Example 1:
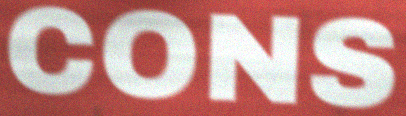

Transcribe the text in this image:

CONS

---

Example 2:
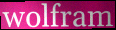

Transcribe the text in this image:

wolfram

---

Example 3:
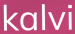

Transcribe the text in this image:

kalvi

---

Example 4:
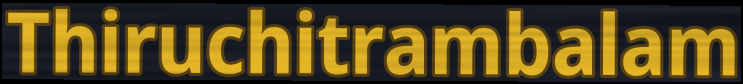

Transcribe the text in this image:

Thiruchitrambalam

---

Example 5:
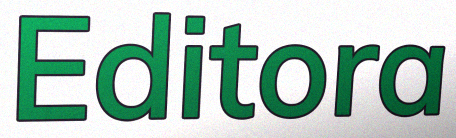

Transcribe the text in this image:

Editora